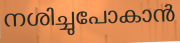
നശിച്ചുപോകാൻ